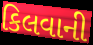
કિલવાની